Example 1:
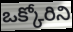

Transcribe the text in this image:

ఒక్కోరిని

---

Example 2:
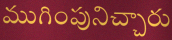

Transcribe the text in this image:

ముగింపునిచ్చారు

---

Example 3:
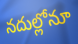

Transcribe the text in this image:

నదుల్లోనూ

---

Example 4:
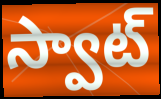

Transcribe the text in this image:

స్వాట్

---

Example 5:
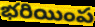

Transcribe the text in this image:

భరియింప